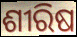
ଶୀରିଷ